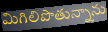
మిగిలిపొతున్నాను